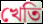
খেতি